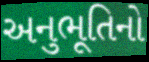
અનુભૂતિનો